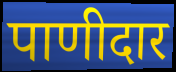
पाणीदार